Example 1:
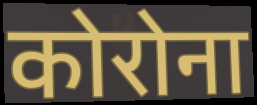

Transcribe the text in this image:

कोरोना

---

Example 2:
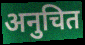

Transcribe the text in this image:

अनुचित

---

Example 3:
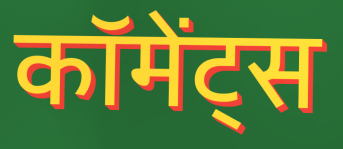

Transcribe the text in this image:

कॉमेंट्स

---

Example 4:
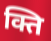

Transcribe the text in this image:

क्ति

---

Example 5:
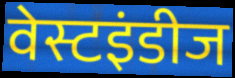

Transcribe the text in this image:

वेस्टइंडीज